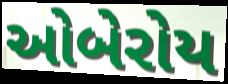
ઓબેરોય